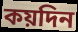
কয়দিন